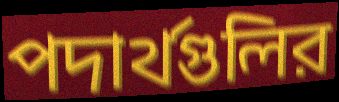
পদার্থগুলির